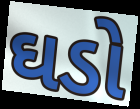
ઘડો